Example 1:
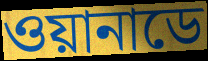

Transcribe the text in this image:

ওয়ানাডে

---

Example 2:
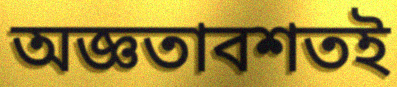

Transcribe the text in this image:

অজ্ঞতাবশতই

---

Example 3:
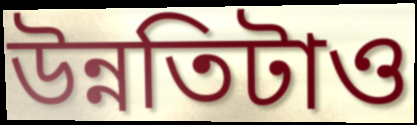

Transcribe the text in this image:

উন্নতিটাও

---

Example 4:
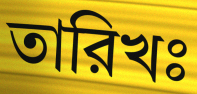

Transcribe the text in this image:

তারিখঃ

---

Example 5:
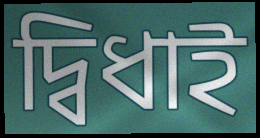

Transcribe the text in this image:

দ্বিধাই